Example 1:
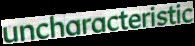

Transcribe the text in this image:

uncharacteristic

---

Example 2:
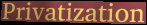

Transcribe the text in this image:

Privatization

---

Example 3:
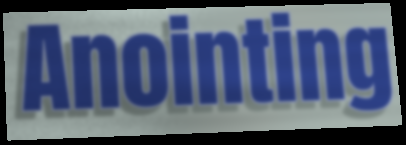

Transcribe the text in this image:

Anointing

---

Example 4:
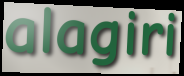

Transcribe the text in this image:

alagiri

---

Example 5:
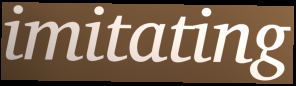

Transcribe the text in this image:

imitating